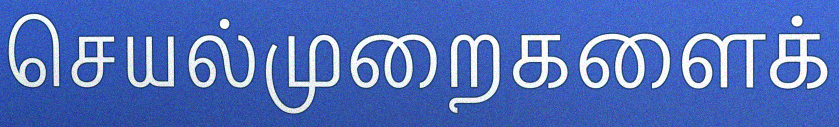
செயல்முறைகளைக்